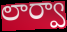
లార్వా